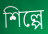
শিল্পে